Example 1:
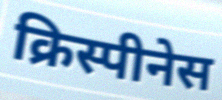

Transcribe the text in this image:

क्रिस्पीनेस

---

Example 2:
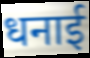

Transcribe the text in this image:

धनाई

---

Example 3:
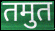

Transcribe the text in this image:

तमुत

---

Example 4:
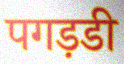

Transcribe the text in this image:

पगड़डी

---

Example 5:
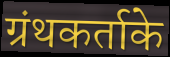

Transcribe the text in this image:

ग्रंथकर्ताके